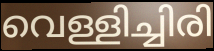
വെള്ളിച്ചിരി